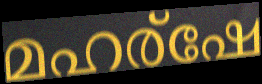
മഹര്ഷേ